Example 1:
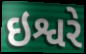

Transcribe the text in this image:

ઇશ્વરે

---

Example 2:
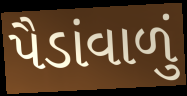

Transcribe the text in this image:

પૈડાંવાળું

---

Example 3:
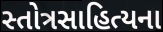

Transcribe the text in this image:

સ્તોત્રસાહિત્યના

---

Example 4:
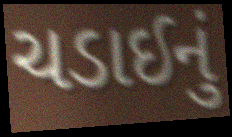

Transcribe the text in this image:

ચડાઈનું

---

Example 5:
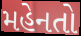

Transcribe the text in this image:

મહેનતો